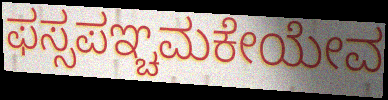
ಫಸ್ಸಪಞ್ಚಮಕೇಯೇವ